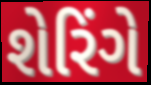
શેરિંગે